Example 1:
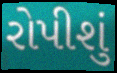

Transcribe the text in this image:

રોપીશું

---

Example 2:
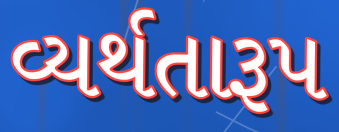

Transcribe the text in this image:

વ્યર્થતારૂપ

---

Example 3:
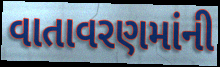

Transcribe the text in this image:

વાતાવરણમાંની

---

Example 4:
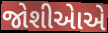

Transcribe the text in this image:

જોશીએાએ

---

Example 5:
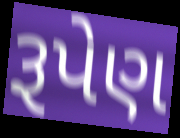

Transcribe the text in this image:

રૂપેણ